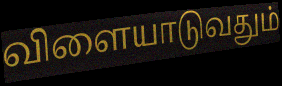
விளையாடுவதும்